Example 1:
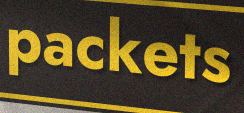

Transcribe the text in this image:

packets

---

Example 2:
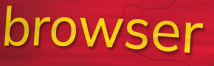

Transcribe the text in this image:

browser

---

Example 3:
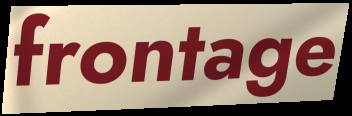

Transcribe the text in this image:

frontage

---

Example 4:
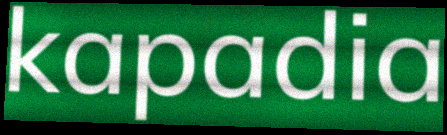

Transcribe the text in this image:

kapadia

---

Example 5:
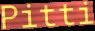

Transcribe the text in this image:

Pitti